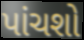
પાંચશો